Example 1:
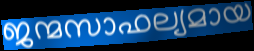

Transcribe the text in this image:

ജന്മസാഫല്യമായ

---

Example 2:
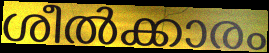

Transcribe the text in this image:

ശീൽക്കാരം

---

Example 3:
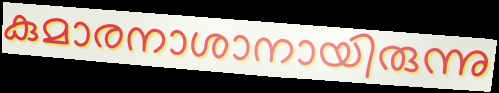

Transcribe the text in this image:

കുമാരനാശാനായിരുന്നു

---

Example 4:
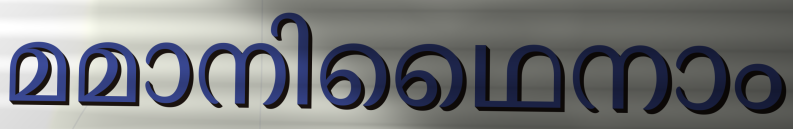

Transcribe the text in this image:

മമാനിഥൈനാം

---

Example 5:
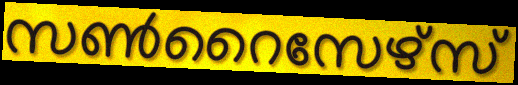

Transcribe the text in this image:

സൺറൈസേഴ്സ്